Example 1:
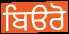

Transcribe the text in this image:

ਬਿੳਰੋ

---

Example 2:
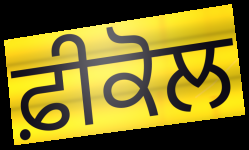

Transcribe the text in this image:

ਫ਼ੀਕੋਲ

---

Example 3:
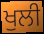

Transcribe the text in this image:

ਖੁਲੀ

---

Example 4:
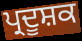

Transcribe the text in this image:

ਪ੍ਰਦੂਸ਼ਕ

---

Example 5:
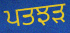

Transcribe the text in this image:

ਪਤਝੜ